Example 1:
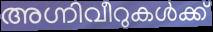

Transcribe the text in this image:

അഗ്നിവീറുകൾക്ക്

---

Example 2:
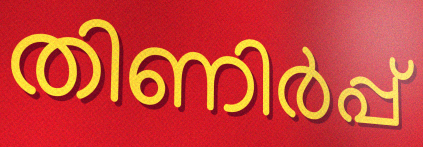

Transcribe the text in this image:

തിണിർപ്പ്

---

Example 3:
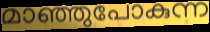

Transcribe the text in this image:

മാഞ്ഞുപോകുന്ന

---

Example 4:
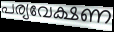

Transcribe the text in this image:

പര്യവേക്ഷണ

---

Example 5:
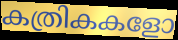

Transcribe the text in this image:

കത്രികകളോ